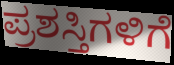
ಪ್ರಶಸ್ತಿಗಳಿಗೆ